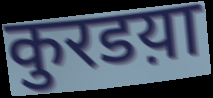
कुरडय़ा